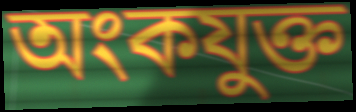
অংকযুক্ত